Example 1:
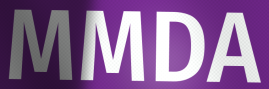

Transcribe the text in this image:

MMDA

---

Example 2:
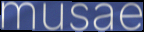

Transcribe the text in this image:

musae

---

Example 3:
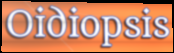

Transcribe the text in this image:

Oidiopsis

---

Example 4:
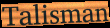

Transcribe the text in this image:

Talisman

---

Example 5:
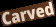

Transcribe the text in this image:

Carved